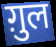
ग़ुल